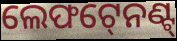
ଲେଫଟ୍‍ନେଣ୍ଟ୍